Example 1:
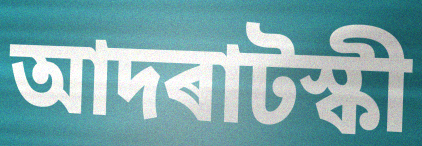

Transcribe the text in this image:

আদৰাটস্কী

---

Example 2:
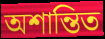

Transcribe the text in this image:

অশান্তিত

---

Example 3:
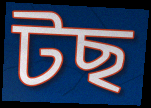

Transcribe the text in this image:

টছ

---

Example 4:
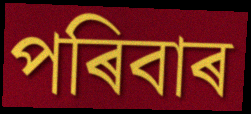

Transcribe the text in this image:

পৰিবাৰ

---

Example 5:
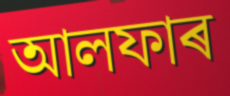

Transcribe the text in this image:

আলফাৰ